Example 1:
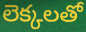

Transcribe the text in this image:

లెక్కలతో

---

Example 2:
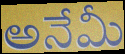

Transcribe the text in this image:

అనేమీ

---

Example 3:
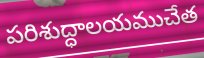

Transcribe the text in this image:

పరిశుద్ధాలయముచేత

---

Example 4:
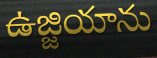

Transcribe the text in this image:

ఉజ్జియాను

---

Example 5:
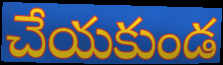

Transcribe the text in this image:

చేయకుండ